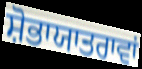
ਸ਼ੋਭਾਯਾਤਰਾਵਾਂ